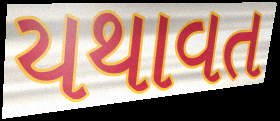
યથાવત